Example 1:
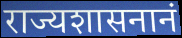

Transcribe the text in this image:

राज्यशासनानं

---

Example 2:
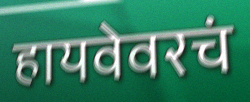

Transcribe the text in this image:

हायवेवरचं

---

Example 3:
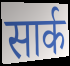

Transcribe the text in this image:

सार्क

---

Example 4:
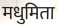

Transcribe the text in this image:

मधुमिता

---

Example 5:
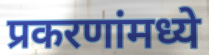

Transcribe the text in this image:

प्रकरणांमध्ये